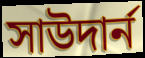
সাউদার্ন